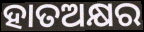
ହାତଅକ୍ଷର